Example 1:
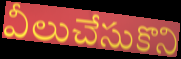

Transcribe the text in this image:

వీలుచేసుకొని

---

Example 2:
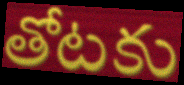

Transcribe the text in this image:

తోటకు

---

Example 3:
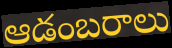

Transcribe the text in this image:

ఆడంబరాలు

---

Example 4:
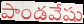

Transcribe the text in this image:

పాండవేషు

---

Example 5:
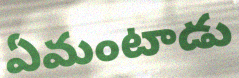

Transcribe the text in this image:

ఏమంటాడు